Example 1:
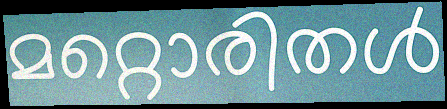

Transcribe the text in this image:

മറ്റൊരിതൾ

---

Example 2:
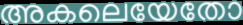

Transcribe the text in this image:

അകലെയേതോ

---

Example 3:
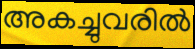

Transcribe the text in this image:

അകച്ചുവരിൽ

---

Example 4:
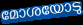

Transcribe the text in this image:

മോശയോടു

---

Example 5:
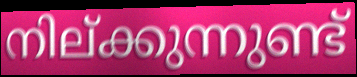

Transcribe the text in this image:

നില്ക്കുന്നുണ്ട്